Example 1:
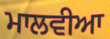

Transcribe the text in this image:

ਮਾਲਵੀਆ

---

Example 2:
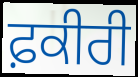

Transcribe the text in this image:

ਫ਼ਕੀਰੀ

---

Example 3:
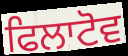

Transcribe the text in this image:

ਫਿਲਾਟੋਵ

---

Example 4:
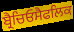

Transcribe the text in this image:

ਬ੍ਰੈਚਿਓਸੈਫਲਿਕ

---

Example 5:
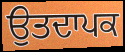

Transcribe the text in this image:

ਉਤਦਾਪਕ